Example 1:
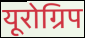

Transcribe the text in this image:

यूरोग्रिप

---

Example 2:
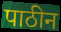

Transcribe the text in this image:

पाठीन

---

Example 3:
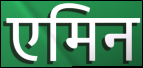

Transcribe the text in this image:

एमिन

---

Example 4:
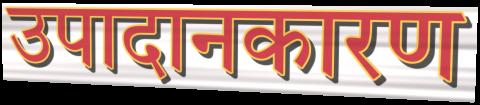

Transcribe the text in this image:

उपादानकारण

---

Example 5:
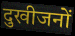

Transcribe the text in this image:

दुखीजनों